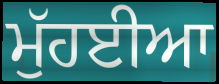
ਮੁੱਹਈਆ